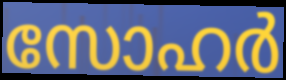
സോഹർ